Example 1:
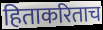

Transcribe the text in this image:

हिताकरिताच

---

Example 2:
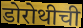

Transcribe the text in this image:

डोरोथीची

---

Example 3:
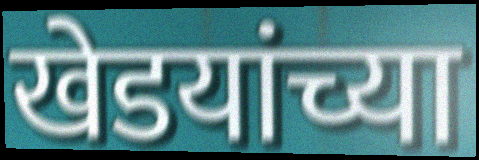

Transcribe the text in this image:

खेडयांच्या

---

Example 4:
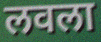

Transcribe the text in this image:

लवला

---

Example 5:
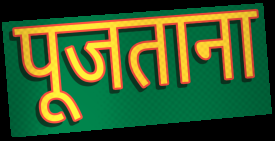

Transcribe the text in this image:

पूजताना